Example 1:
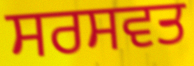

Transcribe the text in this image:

ਸਰਸਵਤ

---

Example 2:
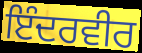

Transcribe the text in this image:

ਇੰਦਰਵੀਰ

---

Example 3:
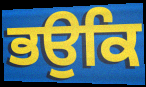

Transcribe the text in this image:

ਭਉਕਿ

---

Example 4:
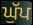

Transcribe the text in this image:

ਘੁੱਪ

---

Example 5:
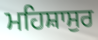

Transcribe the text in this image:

ਮਹਿਸ਼ਾਸੁਰ